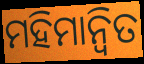
ମହିମାନ୍ୱିତ